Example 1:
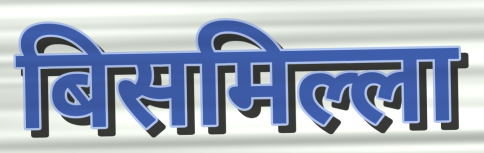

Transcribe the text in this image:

बिसमिल्ला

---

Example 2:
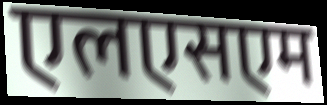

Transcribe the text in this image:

एलएसएम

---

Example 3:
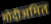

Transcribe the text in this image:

मोदीअमित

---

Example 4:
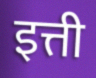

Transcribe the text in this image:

इत्ती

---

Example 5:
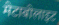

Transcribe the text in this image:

मेटाबोलाइट